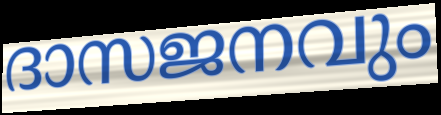
ദാസജനവും